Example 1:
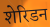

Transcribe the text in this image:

शेरिडन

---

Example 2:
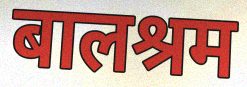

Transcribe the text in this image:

बालश्रम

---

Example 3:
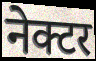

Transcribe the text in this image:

नेक्टर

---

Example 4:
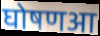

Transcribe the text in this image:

घोषणआ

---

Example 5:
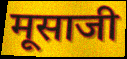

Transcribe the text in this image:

मूसाजी